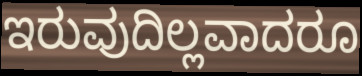
ಇರುವುದಿಲ್ಲವಾದರೂ